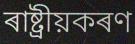
ৰাষ্ট্ৰীয়কৰণ